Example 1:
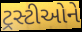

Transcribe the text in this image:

ટ્રસ્ટીઓને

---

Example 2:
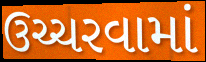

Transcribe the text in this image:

ઉચ્ચરવામાં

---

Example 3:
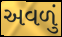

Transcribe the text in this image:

અવળું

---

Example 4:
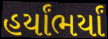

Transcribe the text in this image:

હર્યાંભર્યાં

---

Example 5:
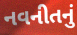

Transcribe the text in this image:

નવનીતનું